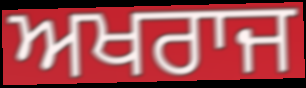
ਅਖਰਾਜ